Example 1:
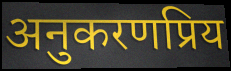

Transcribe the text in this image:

अनुकरणप्रिय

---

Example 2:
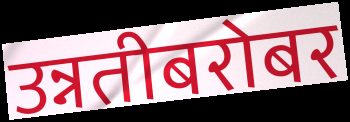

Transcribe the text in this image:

उन्नतीबरोबर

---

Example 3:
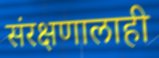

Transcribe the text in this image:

संरक्षणालाही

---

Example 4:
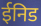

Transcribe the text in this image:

ईनिड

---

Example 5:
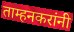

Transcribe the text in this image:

ताम्हनकरांनी